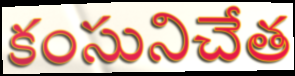
కంసునిచేత